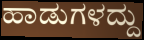
ಹಾಡುಗಳದ್ದು